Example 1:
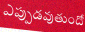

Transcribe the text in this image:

ఎప్పుడవుతుందో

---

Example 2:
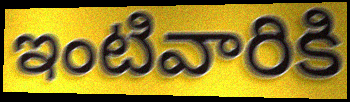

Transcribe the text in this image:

ఇంటివారికి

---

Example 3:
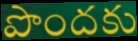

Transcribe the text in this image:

పొందకు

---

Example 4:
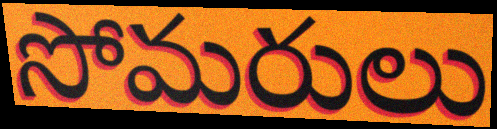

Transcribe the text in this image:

సోమరులు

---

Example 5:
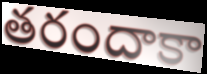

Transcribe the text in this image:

తరందాకా